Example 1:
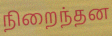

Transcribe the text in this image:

நிறைந்தன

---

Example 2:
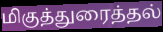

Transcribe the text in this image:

மிகுத்துரைத்தல்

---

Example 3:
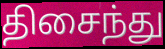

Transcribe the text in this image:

திசைந்து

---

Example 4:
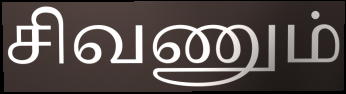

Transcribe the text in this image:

சிவணும்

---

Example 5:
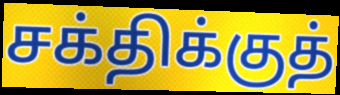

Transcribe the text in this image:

சக்திக்குத்